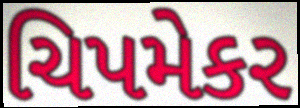
ચિપમેકર